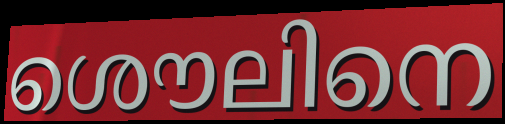
ശൌലിനെ